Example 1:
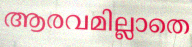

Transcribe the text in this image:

ആരവമില്ലാതെ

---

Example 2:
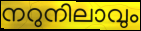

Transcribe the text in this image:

നറുനിലാവും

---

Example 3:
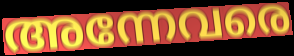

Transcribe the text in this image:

അന്നേവരെ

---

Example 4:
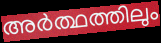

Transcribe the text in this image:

അർത്ഥത്തിലും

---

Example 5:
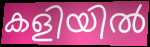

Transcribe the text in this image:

കളിയിൽ